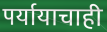
पर्यायाचाही